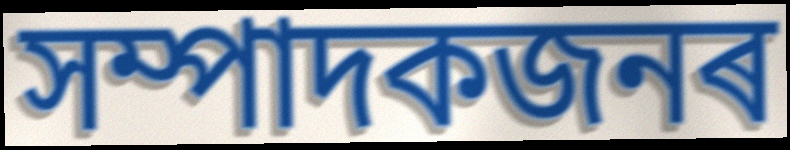
সম্পাদকজনৰ